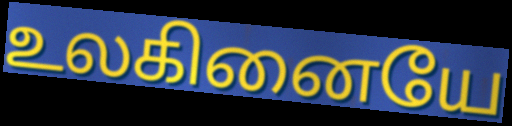
உலகினையே